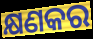
କ୍ଷଣକର